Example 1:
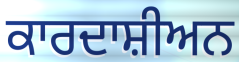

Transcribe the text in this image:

ਕਾਰਦਾਸ਼ੀਅਨ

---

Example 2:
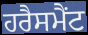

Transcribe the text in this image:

ਹਰੈਸਮੈਂਟ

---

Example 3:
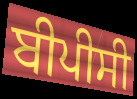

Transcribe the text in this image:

ਬੀਪੀਸੀ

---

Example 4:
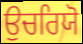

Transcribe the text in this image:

ਉਚਰਿਯੋ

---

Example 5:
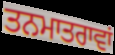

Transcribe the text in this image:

ਤਨਮਾਤਰਾਵਾਂ